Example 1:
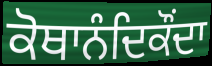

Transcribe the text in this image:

ਕੋਥਾਨੰਦਿਕੌਂਦਾ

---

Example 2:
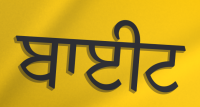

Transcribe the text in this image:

ਬਾਈਟ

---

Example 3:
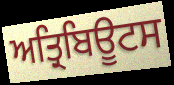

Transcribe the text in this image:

ਅਤ੍ਰਿਬਿਊਟਸ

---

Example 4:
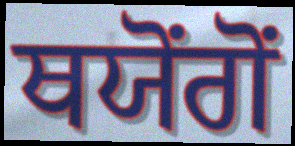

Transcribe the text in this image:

ਥਯੋਂਗੋਂ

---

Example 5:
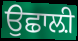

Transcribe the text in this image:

ਉਛਾਲ਼ੀ